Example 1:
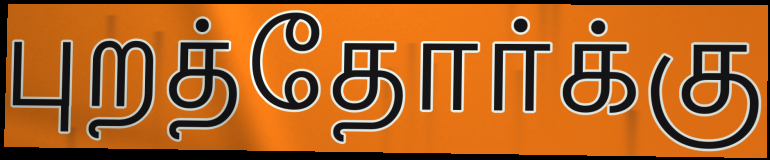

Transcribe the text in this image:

புறத்தோர்க்கு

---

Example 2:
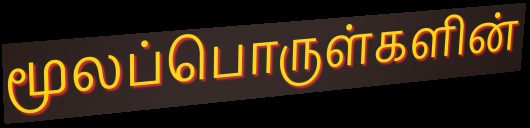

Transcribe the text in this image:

மூலப்பொருள்களின்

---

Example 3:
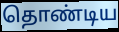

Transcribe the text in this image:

தொண்டிய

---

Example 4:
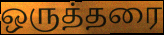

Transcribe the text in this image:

ஒருத்தரை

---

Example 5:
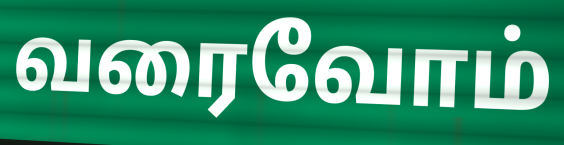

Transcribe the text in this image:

வரைவோம்